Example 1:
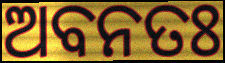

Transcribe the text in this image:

ଅବନତଃ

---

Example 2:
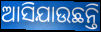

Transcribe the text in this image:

ଆସିଯାଉଛନ୍ତି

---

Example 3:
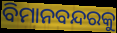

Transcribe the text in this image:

ବିମାନବନ୍ଦରକୁ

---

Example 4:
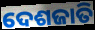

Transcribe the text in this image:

ଦେଶଜାତି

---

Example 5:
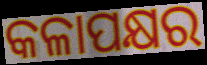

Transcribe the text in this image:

କଳାପକ୍ଷର